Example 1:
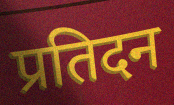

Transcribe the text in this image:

प्रतिदन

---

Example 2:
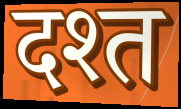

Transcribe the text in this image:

दश्त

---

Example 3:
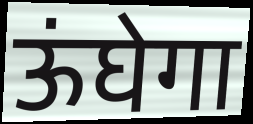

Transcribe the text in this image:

ऊंघेगा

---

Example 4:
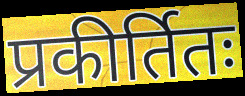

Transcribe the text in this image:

प्रकीर्तितः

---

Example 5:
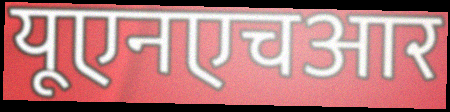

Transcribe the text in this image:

यूएनएचआर